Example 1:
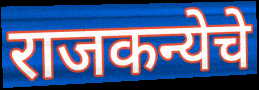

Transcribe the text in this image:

राजकन्येचे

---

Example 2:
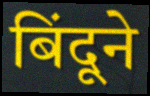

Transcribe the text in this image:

बिंदूने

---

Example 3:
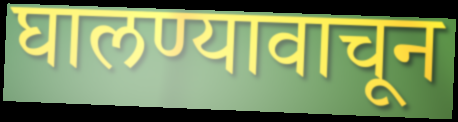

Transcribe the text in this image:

घालण्यावाचून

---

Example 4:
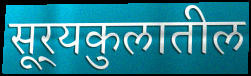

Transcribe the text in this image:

सूर्यकुलातील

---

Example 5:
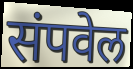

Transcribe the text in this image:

संपवेल